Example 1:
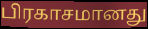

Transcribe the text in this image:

பிரகாசமானது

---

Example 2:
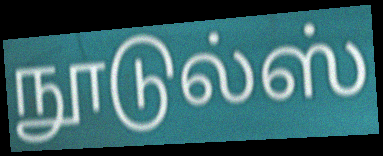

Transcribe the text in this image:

நூடுல்ஸ்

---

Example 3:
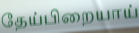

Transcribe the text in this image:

தேய்பிறையாய்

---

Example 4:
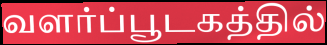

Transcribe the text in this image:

வளர்ப்பூடகத்தில்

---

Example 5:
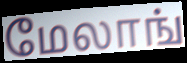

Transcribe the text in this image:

மேலாங்